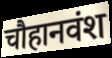
चौहानवंश